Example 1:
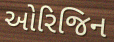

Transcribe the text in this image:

ઓરિજિન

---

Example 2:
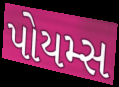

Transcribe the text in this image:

પોયમ્સ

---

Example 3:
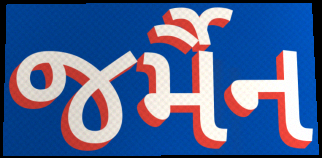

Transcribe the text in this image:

જર્મૈન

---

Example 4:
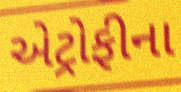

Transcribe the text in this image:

એટ્રોફીના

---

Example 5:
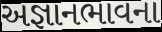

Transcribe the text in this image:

અજ્ઞાનભાવના